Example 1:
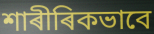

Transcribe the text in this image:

শাৰীৰিকভাবে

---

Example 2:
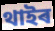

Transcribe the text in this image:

থাইৰ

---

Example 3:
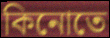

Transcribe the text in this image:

কিনোতে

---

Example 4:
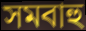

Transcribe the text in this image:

সমবাহু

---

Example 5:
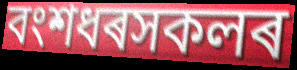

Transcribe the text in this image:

বংশধৰসকলৰ